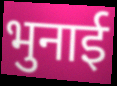
भुनाई